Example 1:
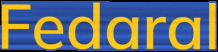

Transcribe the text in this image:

Fedaral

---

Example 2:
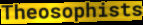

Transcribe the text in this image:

Theosophists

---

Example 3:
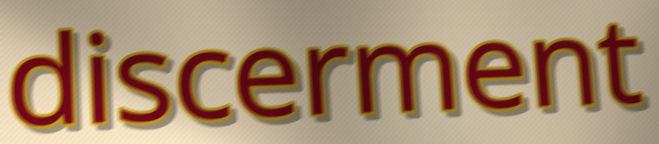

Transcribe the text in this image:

discerment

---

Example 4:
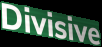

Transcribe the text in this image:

Divisive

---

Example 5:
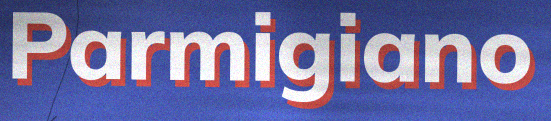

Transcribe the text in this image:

Parmigiano